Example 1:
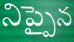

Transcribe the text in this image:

నిప్పైన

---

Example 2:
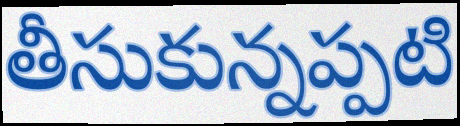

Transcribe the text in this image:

తీసుకున్నప్పటి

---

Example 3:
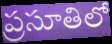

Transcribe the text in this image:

ప్రసూతిలో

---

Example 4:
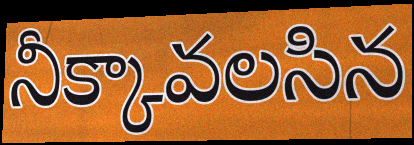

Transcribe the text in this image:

నీక్కావలసిన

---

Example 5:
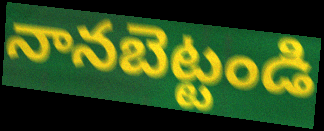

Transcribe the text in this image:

నానబెట్టండి